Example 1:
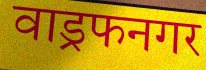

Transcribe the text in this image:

वाड्रफनगर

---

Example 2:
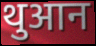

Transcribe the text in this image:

थुआन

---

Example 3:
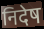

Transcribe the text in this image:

निदेष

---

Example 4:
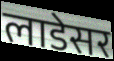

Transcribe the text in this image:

लाडेसर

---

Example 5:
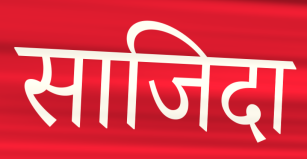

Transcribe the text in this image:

साजिदा